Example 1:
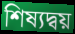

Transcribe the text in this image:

শিষ্যদ্বয়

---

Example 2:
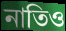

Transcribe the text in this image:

নাতিও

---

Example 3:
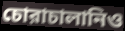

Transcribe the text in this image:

চোরাচালানিও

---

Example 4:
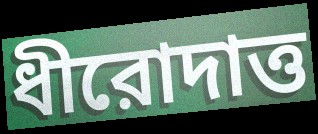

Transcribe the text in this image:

ধীরোদাত্ত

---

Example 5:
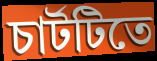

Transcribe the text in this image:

চার্টটিতে